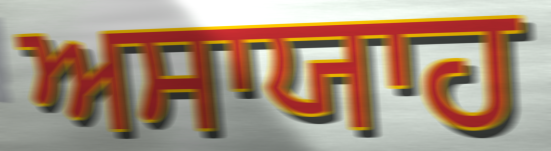
ਅਸਾਯਾਹ